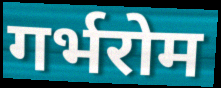
गर्भरोम